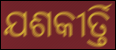
ଯଶକୀର୍ତ୍ତି